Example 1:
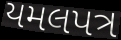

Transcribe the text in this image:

યમલપત્ર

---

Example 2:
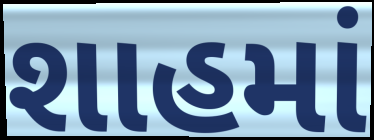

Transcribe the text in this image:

શાહમાં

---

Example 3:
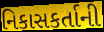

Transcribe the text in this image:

નિકાસકર્તાની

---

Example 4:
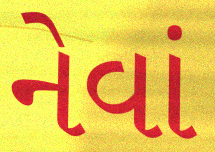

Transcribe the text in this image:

નેવાં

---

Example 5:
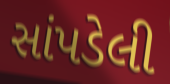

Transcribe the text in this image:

સાંપડેલી